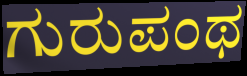
ಗುರುಪಂಥ